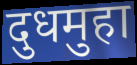
दुधमुहा